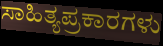
ಸಾಹಿತ್ಯಪ್ರಕಾರಗಳು